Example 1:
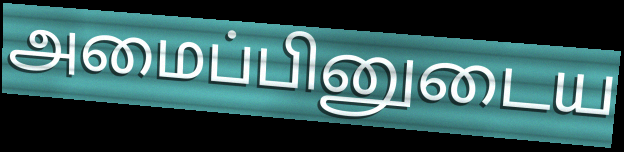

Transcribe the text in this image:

அமைப்பினுடைய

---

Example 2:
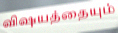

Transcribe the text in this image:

விஷயத்தையும்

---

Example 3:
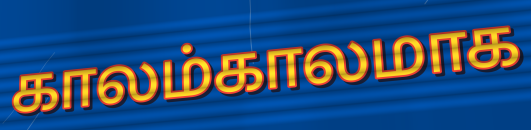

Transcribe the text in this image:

காலம்காலமாக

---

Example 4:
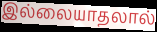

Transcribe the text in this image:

இல்லையாதலால்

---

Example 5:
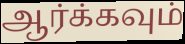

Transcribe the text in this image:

ஆர்க்கவும்